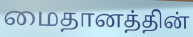
மைதானத்தின்